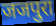
जजपुरा